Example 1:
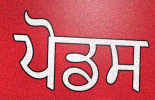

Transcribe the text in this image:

ਪੋਡਸ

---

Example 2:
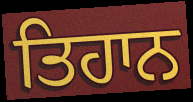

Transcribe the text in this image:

ਤਿਹਾਨ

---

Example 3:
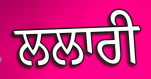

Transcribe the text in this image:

ਲਲਾਰੀ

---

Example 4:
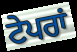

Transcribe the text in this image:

ਟੇਪਰਾਂ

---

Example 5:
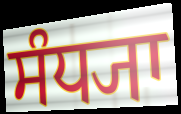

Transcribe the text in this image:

ਸੰਧ੍ਯਾ